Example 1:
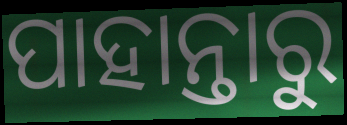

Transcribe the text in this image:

ପାହାନ୍ତାରୁ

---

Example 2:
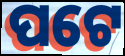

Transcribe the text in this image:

ପଟେ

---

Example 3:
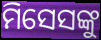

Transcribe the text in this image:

ମିସେସଙ୍କୁ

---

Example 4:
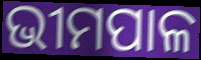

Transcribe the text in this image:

ଭୀମପାଳ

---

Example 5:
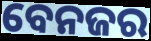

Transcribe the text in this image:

ବେନଜର